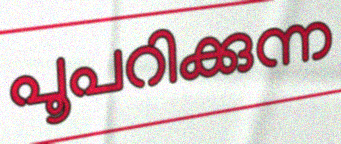
പൂപറിക്കുന്ന